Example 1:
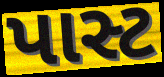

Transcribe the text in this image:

પાસ્ટ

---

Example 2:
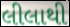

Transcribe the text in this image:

લીલાથી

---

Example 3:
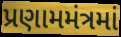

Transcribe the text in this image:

પ્રણામમંત્રમાં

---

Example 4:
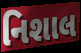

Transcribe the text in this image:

નિશાલ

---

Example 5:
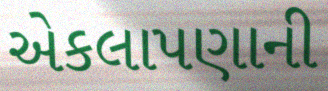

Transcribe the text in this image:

એકલાપણાની